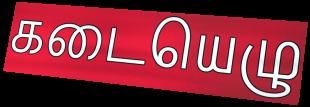
கடையெழு